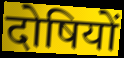
दोषियों